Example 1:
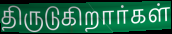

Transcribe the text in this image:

திருடுகிறார்கள்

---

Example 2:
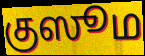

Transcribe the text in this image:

குஸூம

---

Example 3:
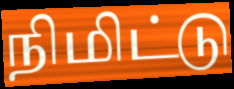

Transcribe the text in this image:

நிமிட்டு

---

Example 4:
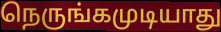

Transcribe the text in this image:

நெருங்கமுடியாது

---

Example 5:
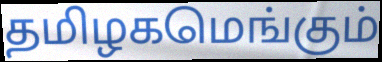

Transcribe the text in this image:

தமிழகமெங்கும்